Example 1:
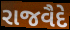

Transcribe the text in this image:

રાજવૈદે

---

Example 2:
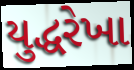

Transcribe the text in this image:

યુદ્ધરેખા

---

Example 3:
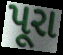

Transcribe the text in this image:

પૂરા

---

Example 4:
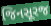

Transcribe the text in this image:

જિનસૂરજ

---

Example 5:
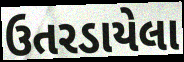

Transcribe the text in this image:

ઉતરડાયેલા